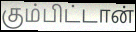
கும்பிட்டான்